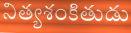
నిత్యశంకితుడు